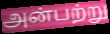
அன்பற்று